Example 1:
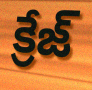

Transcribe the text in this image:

క్రేజ్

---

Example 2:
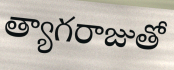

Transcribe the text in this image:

త్యాగరాజుతో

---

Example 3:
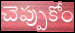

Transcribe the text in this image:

చెప్పుకోం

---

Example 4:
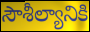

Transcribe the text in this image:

సౌశీల్యానికి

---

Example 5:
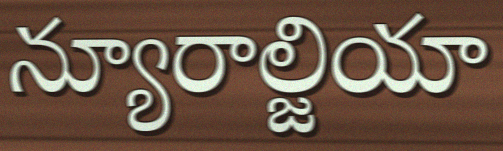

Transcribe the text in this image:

న్యూరాల్జియా